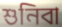
শুনিবা